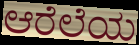
ಆರೆಲೆಯ